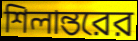
শিলান্তরের